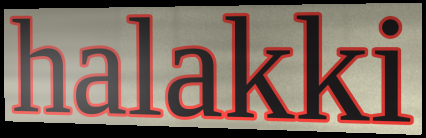
halakki